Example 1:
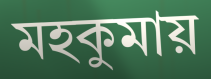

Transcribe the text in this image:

মহকুমায়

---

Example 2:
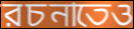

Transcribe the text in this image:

রচনাতেও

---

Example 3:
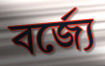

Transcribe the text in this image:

বর্জ্যে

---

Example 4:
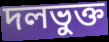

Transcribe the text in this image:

দলভুক্ত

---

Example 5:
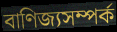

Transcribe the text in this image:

বাণিজ্যসম্পর্ক